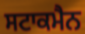
ਸਟਾਕਮੈਨ